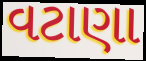
વટાણા